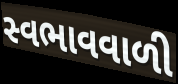
સ્વભાવવાળી